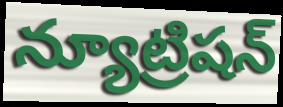
న్యూట్రిషన్